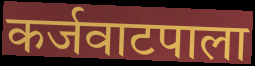
कर्जवाटपाला